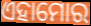
ଏହାମୋର